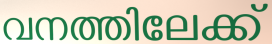
വനത്തിലേക്ക്